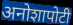
अनोशापोटी